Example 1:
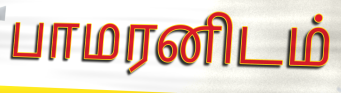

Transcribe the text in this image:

பாமரனிடம்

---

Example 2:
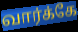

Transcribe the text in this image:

வார்க்கே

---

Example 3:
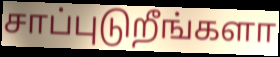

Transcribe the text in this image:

சாப்புடுறீங்களா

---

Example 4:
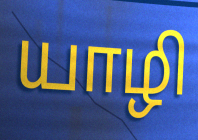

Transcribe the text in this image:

யாழி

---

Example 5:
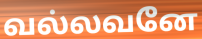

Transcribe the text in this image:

வல்லவனே